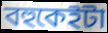
বহুকেইটা